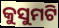
କୁସୁମଟି